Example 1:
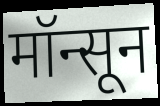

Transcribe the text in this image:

मॉन्सून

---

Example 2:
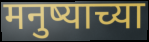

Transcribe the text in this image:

मनुष्याच्या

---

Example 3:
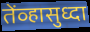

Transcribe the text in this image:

तेंव्हासुध्दा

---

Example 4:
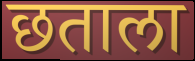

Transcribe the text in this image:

छताला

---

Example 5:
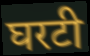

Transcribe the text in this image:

घरटी